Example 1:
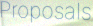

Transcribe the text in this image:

Proposals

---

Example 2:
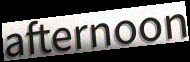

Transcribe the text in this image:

afternoon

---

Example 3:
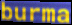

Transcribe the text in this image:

burma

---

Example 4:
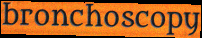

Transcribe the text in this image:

bronchoscopy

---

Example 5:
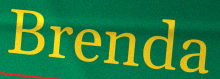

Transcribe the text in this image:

Brenda